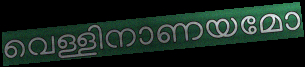
വെള്ളിനാണയമോ